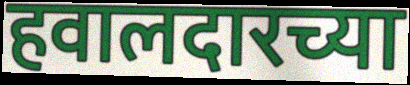
हवालदारच्या